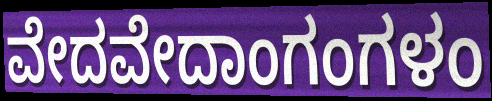
ವೇದವೇದಾಂಗಂಗಳಂ